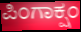
ಪಿಂಗಾಕ್ಷಂ